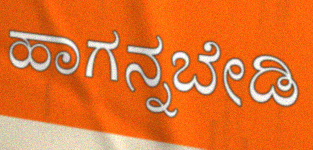
ಹಾಗನ್ನಬೇಡಿ